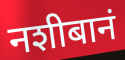
नशीबानं